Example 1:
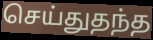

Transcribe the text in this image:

செய்துதந்த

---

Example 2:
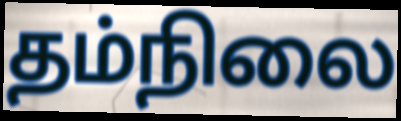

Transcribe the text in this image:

தம்நிலை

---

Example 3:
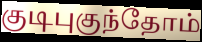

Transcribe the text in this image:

குடிபுகுந்தோம்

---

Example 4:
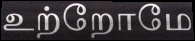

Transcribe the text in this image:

உற்றோமே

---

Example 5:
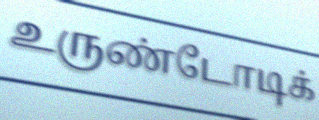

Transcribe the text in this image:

உருண்டோடிக்